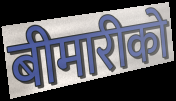
बीमारीको